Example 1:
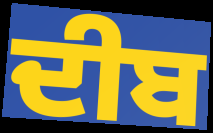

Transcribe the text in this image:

ਦੀਬ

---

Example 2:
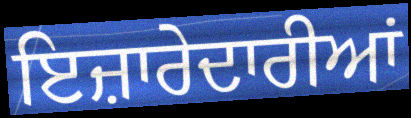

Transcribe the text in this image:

ਇਜ਼ਾਰੇਦਾਰੀਆਂ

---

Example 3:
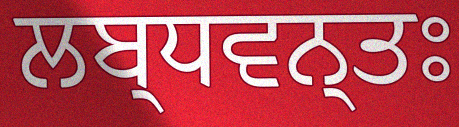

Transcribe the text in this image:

ਲਬ੍ਧਵਨ੍ਤਃ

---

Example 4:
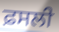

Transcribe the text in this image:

ਫ਼ਸਲੀ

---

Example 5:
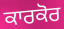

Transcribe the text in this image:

ਕਾਰਕੋਰ